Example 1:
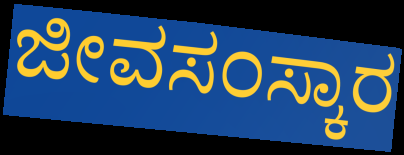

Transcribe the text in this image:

ಜೀವಸಂಸ್ಕಾರ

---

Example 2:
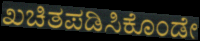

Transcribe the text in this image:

ಖಚಿತಪಡಿಸಿಕೊಂಡೇ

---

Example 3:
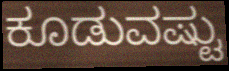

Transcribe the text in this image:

ಕೂಡುವಷ್ಟು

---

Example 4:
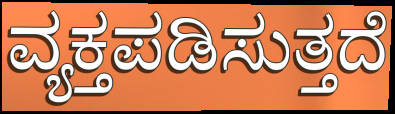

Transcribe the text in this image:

ವ್ಯಕ್ತಪಡಿಸುತ್ತದೆ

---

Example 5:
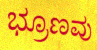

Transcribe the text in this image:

ಭ್ರೂಣವು